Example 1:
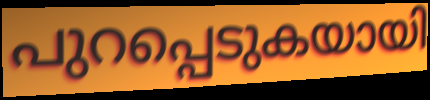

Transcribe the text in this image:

പുറപ്പെടുകയായി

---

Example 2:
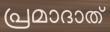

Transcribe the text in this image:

പ്രമാദാത്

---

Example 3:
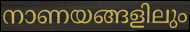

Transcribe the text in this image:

നാണയങ്ങളിലും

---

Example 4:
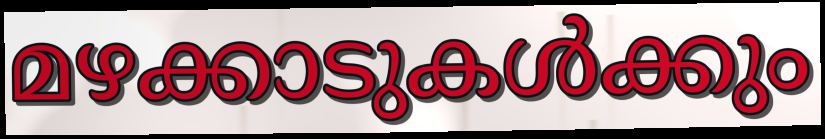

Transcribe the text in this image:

മഴക്കാടുകൾക്കും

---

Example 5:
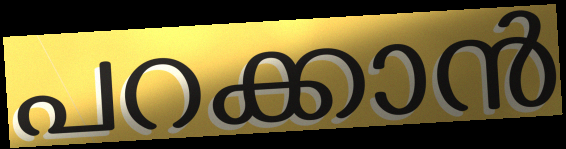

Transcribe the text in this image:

പറക്കാൻ